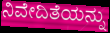
ನಿವೇದಿತೆಯನ್ನು